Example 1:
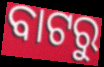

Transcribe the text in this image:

ବାଟରୁ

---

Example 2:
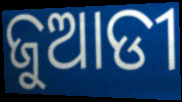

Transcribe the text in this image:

ଜୁଆଡୀ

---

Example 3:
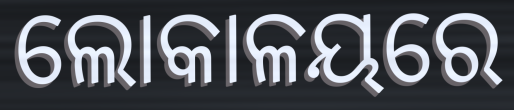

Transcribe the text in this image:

ଲୋକାଳୟରେ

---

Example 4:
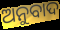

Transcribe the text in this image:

ଅନୁବାଦ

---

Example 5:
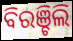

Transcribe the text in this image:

ବିରଞ୍ଚିଲି